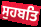
ਸੁਹਬਤਿ